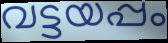
വട്ടയപ്പം